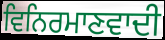
ਵਿਨਿਰਮਾਣਵਾਦੀ